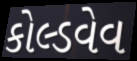
કોલ્ડવેવ